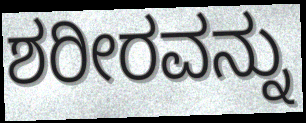
ಶರೀರವನ್ನು